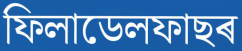
ফিলাডেলফাছৰ